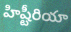
హిష్టీరియా